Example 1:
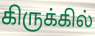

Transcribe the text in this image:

கிருக்கில்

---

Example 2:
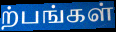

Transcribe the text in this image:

ற்பங்கள்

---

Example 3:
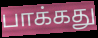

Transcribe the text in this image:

பாக்கது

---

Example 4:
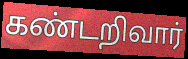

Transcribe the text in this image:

கண்டறிவார்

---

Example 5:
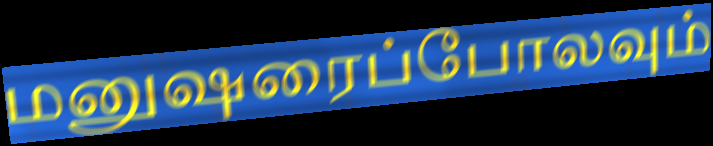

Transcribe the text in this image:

மனுஷரைப்போலவும்